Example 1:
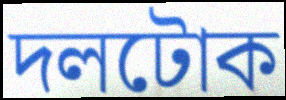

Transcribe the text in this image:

দলটোক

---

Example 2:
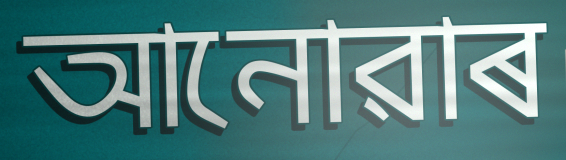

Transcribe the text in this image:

আনোৱাৰ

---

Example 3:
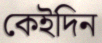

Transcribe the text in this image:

কেইদিন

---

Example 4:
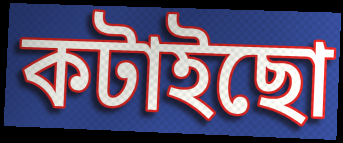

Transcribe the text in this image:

কটাইছো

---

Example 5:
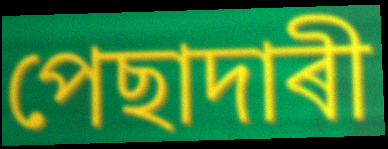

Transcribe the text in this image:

পেছাদাৰী